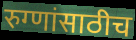
रुग्णांसाठीच